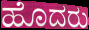
ಹೊದರು